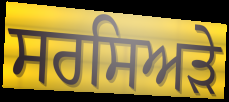
ਸਰਸਿਅੜੇ